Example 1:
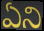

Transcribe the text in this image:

ఏని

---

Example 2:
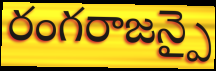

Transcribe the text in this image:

రంగరాజన్పై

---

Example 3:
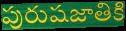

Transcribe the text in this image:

పురుషజాతికి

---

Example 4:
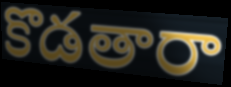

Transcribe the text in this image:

కొడతారా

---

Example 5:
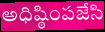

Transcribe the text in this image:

అధిష్ఠింపజేసి